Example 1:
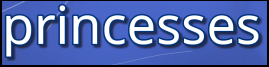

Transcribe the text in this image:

princesses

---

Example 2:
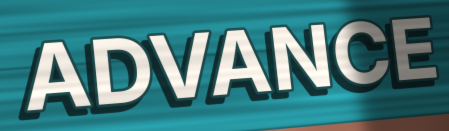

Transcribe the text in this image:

ADVANCE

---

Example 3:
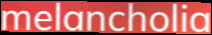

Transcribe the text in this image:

melancholia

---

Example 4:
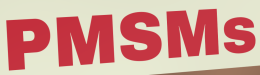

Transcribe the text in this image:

PMSMs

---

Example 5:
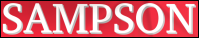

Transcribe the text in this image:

SAMPSON